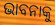
ଭାବନାକୁ